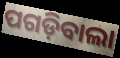
ପଗଡ଼ିବାଲା